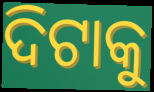
ଦିଟାକୁ